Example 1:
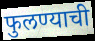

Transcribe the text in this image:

फुलण्याची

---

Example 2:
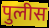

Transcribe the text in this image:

पुलीस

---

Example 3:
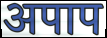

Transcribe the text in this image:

अपाप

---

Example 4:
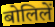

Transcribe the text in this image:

बोलिलें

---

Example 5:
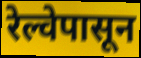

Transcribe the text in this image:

रेल्वेपासून